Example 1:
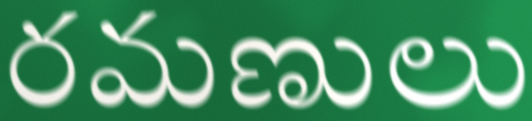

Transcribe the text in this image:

రమణులు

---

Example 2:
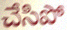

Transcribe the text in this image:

చేసిపో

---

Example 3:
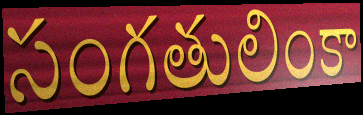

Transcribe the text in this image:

సంగతులింకా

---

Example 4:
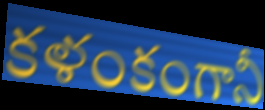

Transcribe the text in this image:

కళంకంగానీ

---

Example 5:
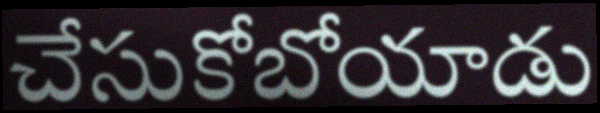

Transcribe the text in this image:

చేసుకోబోయాడు